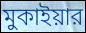
মুকাইয়ার